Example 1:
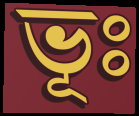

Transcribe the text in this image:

ভূঃ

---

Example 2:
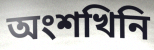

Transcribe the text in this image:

অংশখিনি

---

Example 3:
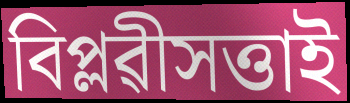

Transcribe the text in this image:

বিপ্লৱীসত্তাই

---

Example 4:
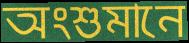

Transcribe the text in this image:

অংশুমানে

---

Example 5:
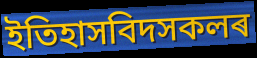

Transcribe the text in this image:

ইতিহাসবিদসকলৰ